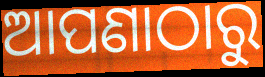
ଆପଣାଠାରୁ